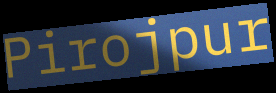
Pirojpur